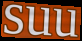
suu